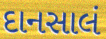
દાનસાલં